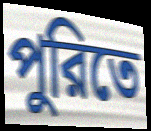
পুরিতে